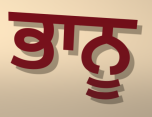
ਭਾਨੂ